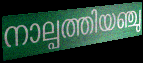
നാല്പത്തിയഞ്ചു